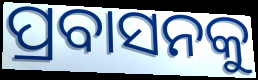
ପ୍ରବାସନକୁ